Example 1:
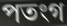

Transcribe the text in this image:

পতংগ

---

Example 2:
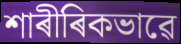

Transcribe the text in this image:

শাৰীৰিকভাৱে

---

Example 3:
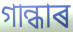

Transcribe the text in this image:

গান্ধাৰ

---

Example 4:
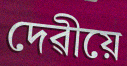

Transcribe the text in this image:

দেৱীয়ে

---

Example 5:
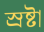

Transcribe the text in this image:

স্ৰষ্টা